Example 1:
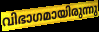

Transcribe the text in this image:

വിഭാഗമായിരുന്നു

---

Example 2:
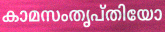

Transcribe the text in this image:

കാമസംതൃപ്തിയോ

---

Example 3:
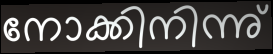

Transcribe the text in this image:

നോക്കിനിന്നു്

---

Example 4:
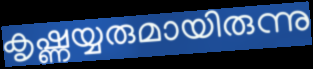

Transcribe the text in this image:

കൃഷ്ണയ്യരുമായിരുന്നു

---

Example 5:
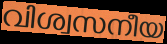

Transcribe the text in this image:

വിശ്വസനീയ